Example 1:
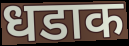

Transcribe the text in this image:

धडाक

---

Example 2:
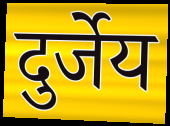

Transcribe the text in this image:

दुर्जेय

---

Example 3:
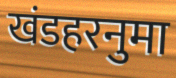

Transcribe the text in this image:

खंडहरनुमा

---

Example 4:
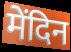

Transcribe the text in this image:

मेंदिन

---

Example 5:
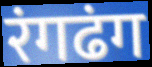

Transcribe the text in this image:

रंगढंग